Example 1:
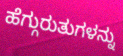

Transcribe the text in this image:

ಹೆಗ್ಗುರುತುಗಳನ್ನು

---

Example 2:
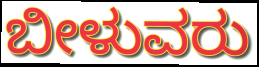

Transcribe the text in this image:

ಬೀಳುವರು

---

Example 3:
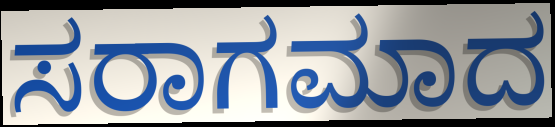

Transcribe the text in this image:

ಸರಾಗಮಾದ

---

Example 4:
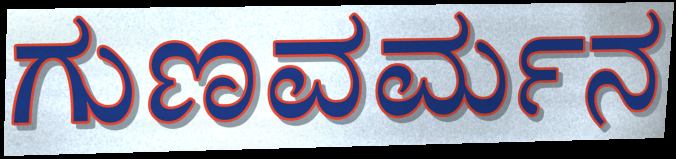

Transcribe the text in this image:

ಗುಣವರ್ಮನ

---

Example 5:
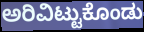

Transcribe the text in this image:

ಅರಿವಿಟ್ಟುಕೊಂಡು